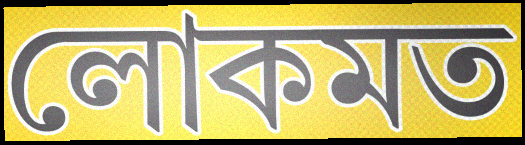
লোকমত